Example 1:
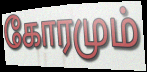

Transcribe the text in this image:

கோரமும்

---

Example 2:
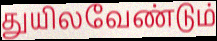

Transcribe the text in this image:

துயிலவேண்டும்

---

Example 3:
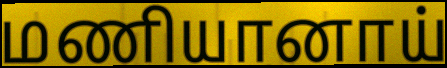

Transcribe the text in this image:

மணியானாய்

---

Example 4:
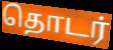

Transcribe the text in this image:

தொடர்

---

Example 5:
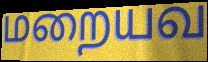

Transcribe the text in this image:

மறையவ